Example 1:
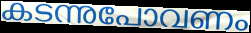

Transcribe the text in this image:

കടന്നുപോവണം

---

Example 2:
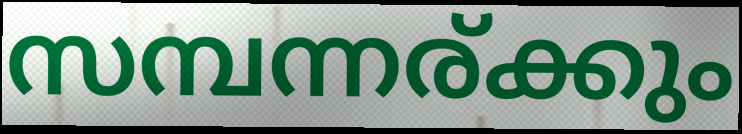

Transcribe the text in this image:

സമ്പന്നര്ക്കും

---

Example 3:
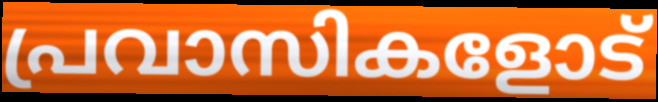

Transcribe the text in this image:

പ്രവാസികളോട്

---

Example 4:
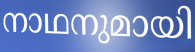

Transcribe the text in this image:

നാഥനുമായി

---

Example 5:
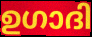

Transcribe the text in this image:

ഉഗാദി